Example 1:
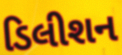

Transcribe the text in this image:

ડિલીશન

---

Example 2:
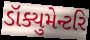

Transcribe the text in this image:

ડૉક્યુમેન્ટરિ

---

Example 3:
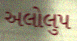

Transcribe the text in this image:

અલોલુપ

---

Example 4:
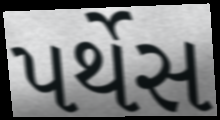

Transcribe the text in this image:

પર્થેસ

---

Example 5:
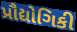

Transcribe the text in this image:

પ્રૌદ્યોગિકી